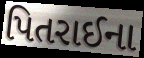
પિતરાઈના